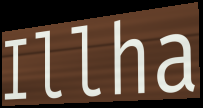
Illha